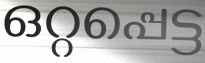
ഒറ്റപ്പെട്ട